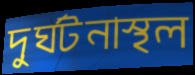
দুর্ঘটনাস্থল